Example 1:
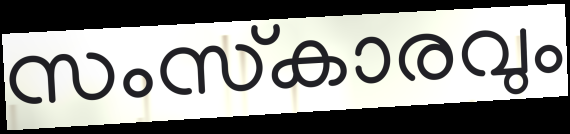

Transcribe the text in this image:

സംസ്‌കാരവും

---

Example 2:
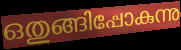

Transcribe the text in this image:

ഒതുങ്ങിപ്പോകുന്നു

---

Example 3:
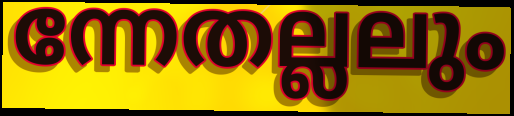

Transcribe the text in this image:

ന്നേതല്ലലും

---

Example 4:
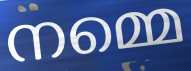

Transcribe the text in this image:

നമ്മെ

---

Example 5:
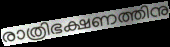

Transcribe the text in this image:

രാത്രിഭക്ഷണത്തിനു